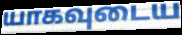
யாகவுடைய